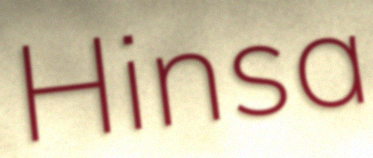
Hinsa